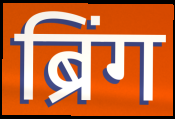
ब्रिंग